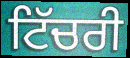
ਟਿੱਚਰੀ